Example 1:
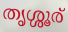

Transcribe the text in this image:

തൃശ്ശൂര്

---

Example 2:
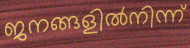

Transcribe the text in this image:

ജനങ്ങളിൽനിന്ന്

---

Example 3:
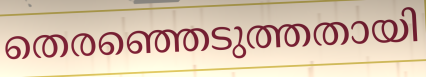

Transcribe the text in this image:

തെരഞ്ഞെടുത്തതായി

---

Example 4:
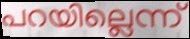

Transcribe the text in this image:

പറയില്ലെന്ന്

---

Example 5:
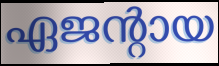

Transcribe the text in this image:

ഏജന്റായ